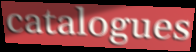
catalogues